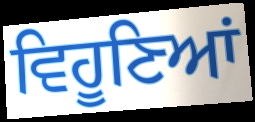
ਵਿਹੂਣਿਆਂ